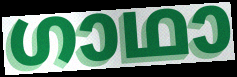
ഗാഥാ